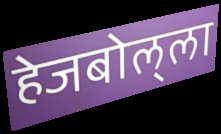
हेजबोल्ला